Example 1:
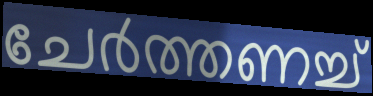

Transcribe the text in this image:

ചേർത്തണച്ച്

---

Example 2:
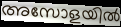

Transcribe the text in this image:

അസോളയിൽ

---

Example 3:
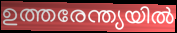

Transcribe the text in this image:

ഉത്തരേന്ത്യയിൽ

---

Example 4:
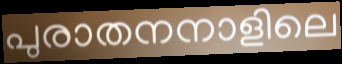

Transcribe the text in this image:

പുരാതനനാളിലെ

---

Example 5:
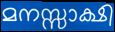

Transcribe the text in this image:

മനസ്സാക്ഷി